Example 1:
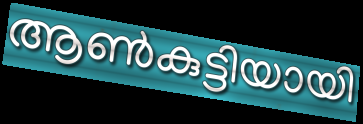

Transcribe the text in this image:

ആൺകുട്ടിയായി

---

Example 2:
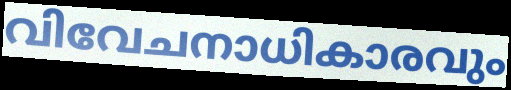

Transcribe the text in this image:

വിവേചനാധികാരവും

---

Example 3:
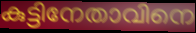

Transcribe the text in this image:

കുട്ടിനേതാവിനെ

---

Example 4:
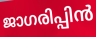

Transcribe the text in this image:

ജാഗരിപ്പിൻ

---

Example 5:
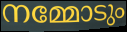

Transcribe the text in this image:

നമ്മോടും